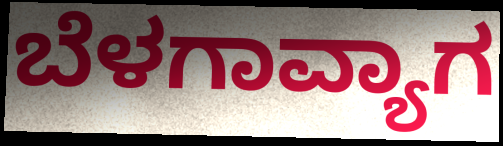
ಬೆಳಗಾವ್ಯಾಗ